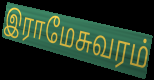
இராமேசுவரம்